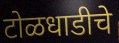
टोळधाडीचे